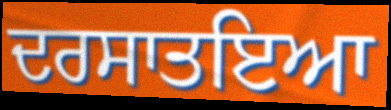
ਦਰਸਾਤਇਆ